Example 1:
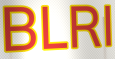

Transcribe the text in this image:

BLRI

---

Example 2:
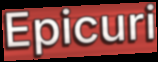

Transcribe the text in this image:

Epicuri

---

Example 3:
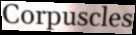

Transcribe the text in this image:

Corpuscles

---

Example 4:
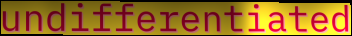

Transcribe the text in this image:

undifferentiated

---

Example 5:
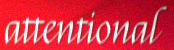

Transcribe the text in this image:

attentional